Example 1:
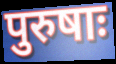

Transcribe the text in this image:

पुरुषाः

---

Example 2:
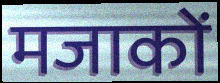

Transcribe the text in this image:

मजाकों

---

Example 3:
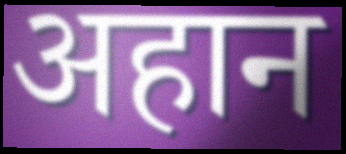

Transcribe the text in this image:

अहान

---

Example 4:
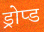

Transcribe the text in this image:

ड्रोप्ड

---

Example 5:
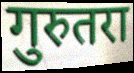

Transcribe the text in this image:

गुरुतरा